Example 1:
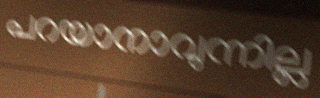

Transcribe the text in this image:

പറയാനാവുന്നില്ല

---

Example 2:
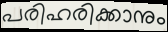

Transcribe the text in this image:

പരിഹരിക്കാനും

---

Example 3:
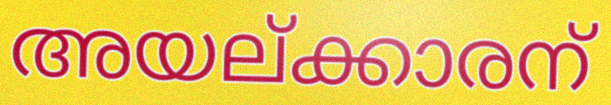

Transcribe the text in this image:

അയല്ക്കാരന്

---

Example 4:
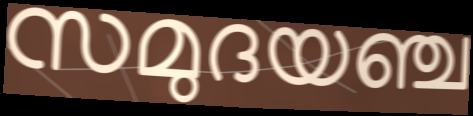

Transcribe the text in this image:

സമുദയഞ്ച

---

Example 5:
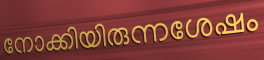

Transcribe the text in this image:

നോക്കിയിരുന്നശേഷം